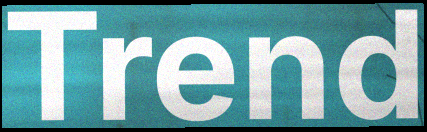
Trend